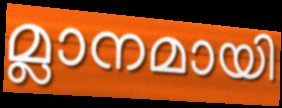
മ്ലാനമായി